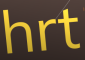
hrt